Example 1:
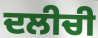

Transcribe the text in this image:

ਦਲੀਚੀ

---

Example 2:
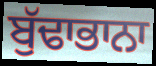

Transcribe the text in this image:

ਬੁੱਢਾਭਾਨਾ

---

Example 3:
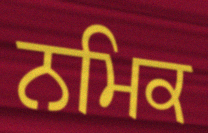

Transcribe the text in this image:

ਨਮਿਕ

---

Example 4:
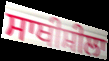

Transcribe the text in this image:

ਸਾਥੀਸ਼ੀਲਾ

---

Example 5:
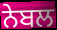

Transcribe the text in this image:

ਨੇਬਲ